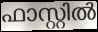
ഫാസ്റ്റിൽ